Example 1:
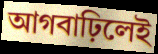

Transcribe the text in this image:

আগবাঢ়িলেই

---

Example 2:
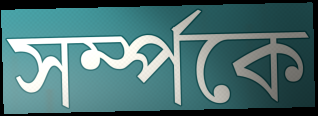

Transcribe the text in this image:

সৰ্ম্পকে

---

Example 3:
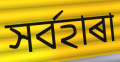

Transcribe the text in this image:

সৰ্বহাৰা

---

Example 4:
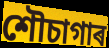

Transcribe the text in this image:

শৌচাগাৰ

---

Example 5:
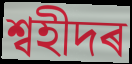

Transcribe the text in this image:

শ্বহীদৰ